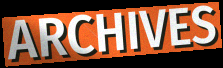
ARCHIVES